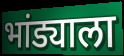
भांड्याला